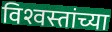
विश्वस्तांच्या